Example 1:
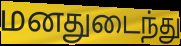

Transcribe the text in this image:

மனதுடைந்து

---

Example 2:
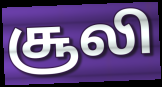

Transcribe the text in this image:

சூலி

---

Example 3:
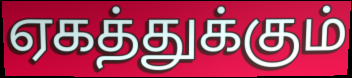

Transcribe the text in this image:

ஏகத்துக்கும்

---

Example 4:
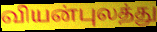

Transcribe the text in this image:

வியன்புலத்து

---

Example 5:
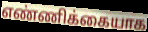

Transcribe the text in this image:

எண்ணிக்கையாக